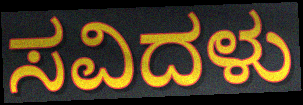
ಸವಿದಳು